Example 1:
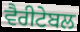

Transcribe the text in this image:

ਵੈਰੀਟੇਬਲ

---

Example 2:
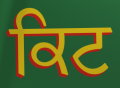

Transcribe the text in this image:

ਕਿਟ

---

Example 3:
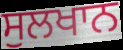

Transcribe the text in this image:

ਸੁਲਖਾਨ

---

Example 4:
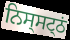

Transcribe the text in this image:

ਨਿਸ੍ਸਟ੍ਠਂ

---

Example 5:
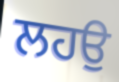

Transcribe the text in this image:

ਲਹਉ